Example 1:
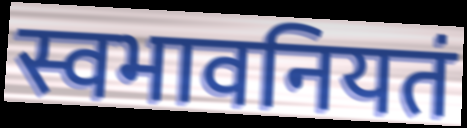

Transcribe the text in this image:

स्वभावनियतं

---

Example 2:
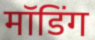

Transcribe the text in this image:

मॉडिंग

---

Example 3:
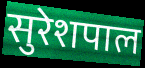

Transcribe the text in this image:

सुरेशपाल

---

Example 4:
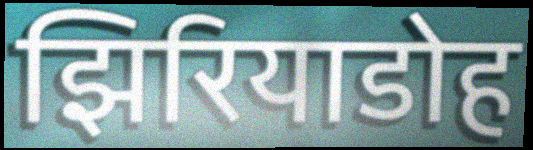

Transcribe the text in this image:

झिरियाडोह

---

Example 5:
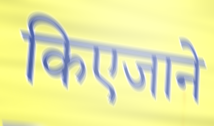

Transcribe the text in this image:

किएजाने